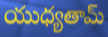
యుధ్యతామ్